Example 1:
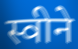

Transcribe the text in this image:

स्वीने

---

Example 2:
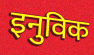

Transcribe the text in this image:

इनुविक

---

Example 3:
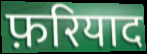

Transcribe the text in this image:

फ़रियाद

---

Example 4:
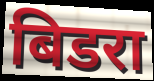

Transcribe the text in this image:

बिडरा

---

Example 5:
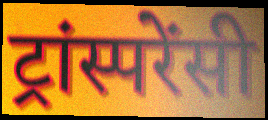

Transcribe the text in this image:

ट्रांस्परेंसी